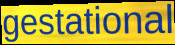
gestational